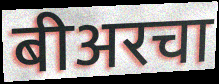
बीअरचा